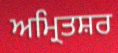
ਅਮ੍ਰਿਤਸ਼ਰ